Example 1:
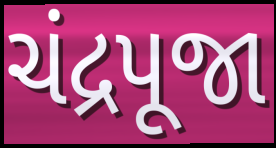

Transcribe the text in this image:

ચંદ્રપૂજા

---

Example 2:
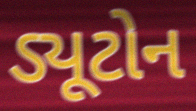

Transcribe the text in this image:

ડ્યૂટોન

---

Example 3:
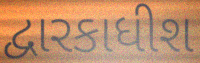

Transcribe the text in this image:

દ્વારકાધીશ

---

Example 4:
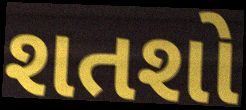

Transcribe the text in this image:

શતશો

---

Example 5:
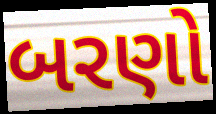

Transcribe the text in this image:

બરણો